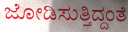
ಜೋಡಿಸುತ್ತಿದ್ದಂತೆ